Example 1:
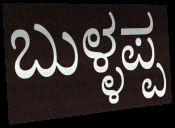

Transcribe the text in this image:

ಬುಳ್ಳಪ್ಪ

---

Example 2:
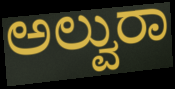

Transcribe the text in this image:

ಅಲ್ವುರಾ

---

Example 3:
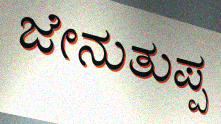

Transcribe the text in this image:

ಜೇನುತುಪ್ಪ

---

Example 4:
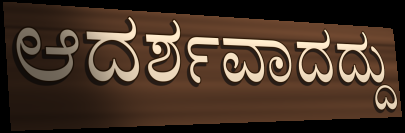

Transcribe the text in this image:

ಆದರ್ಶವಾದದ್ದು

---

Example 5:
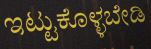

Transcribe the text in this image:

ಇಟ್ಟುಕೊಳ್ಳಬೇಡಿ